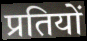
प्रतियों